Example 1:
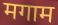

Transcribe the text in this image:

मगाम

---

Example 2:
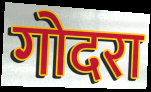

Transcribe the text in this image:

गोदरा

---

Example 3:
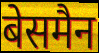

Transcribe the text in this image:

बेसमैन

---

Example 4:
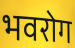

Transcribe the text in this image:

भवरोग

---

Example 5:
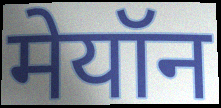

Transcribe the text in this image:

मेयॉन